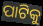
ପାଟିକୁ